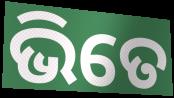
ଭିତେ